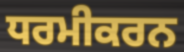
ਧਰਮੀਕਰਨ